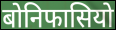
बोनिफासियो